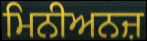
ਮਿਨੀਅਨਜ਼